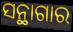
ସନ୍ଥାଗାର